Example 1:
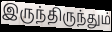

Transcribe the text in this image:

இருந்திருந்தும்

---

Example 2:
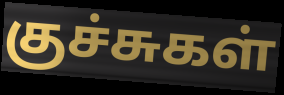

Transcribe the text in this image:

குச்சுகள்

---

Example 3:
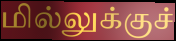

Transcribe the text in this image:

மில்லுக்குச்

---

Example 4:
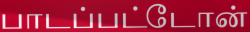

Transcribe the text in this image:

பாடப்பட்டோன்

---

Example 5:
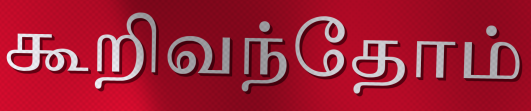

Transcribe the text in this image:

கூறிவந்தோம்